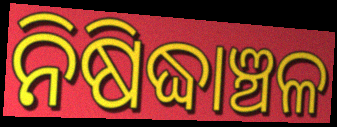
ନିଷିଦ୍ଧାଞ୍ଚଳ